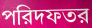
পরিদফতর